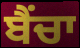
ਬੈਂਚਾ